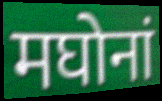
मघोनां